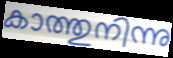
കാത്തുനിന്നു